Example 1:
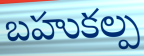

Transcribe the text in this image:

బహుకల్ప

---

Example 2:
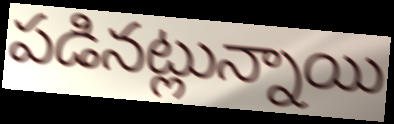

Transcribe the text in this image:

పడినట్లున్నాయి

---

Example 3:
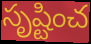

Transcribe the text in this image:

సృష్టించ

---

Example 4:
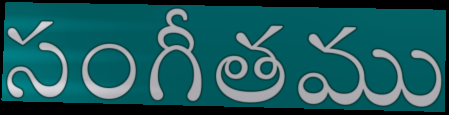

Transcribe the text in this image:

సంగీతము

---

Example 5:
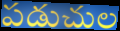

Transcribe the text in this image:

పడుచుల